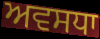
ਅਵਸਧਾ